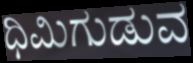
ಧಿಮಿಗುಡುವ